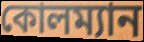
কোলম্যান